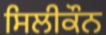
ਸਿਲੀਕੌਨ